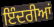
ਇੰਦਰੀਆਂ